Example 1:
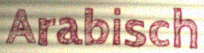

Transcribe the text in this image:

Arabisch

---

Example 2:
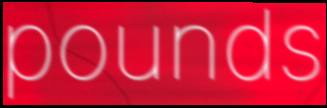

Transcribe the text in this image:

pounds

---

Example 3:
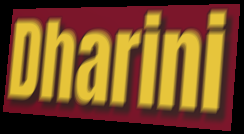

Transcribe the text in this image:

Dharini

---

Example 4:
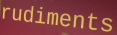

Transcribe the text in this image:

rudiments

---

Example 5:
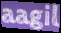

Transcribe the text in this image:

aagil